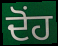
ਦੋਂਹ